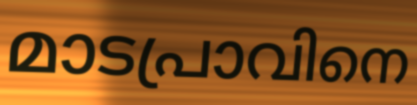
മാടപ്രാവിനെ